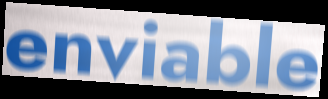
enviable